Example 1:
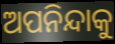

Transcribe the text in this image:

ଅପନିନ୍ଦାକୁ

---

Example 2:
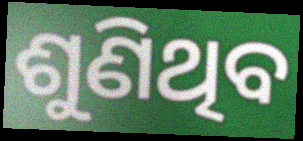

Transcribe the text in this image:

ଶୁଣିଥିବ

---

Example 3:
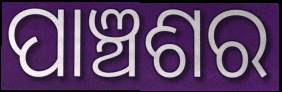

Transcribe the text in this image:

ପାଞ୍ଚଶର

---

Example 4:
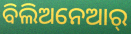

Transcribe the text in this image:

ବିଲିଅନେଆର୍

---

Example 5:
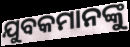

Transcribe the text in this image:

ଯୁବକମାନଙ୍କୁ